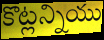
కొట్లన్నియు